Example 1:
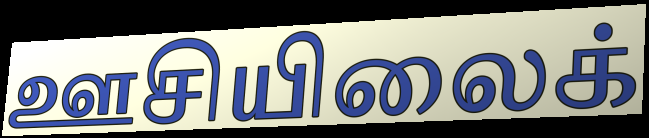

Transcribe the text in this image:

ஊசியிலைக்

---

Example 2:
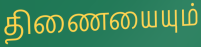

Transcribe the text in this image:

திணையையும்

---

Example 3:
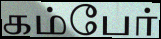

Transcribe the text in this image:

கம்பேர்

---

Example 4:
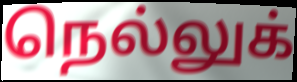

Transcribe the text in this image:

நெல்லுக்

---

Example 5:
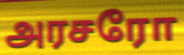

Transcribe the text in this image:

அரசரோ